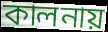
কালনায়